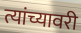
त्यांच्यावरी